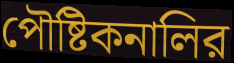
পৌষ্টিকনালির